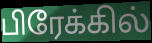
பிரேக்கில்